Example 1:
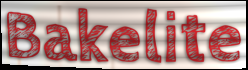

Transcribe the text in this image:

Bakelite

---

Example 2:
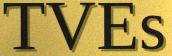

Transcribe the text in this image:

TVEs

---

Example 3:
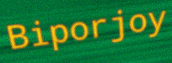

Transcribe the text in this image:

Biporjoy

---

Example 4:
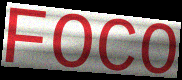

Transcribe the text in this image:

FOCO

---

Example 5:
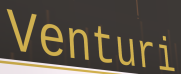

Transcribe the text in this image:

Venturi